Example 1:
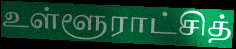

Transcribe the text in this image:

உள்ளூராட்சித்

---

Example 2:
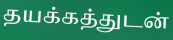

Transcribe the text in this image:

தயக்கத்துடன்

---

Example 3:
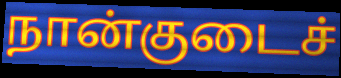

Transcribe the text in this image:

நான்குடைச்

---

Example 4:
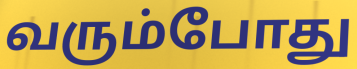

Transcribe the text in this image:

வரும்போது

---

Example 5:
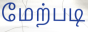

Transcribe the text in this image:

மேற்படி